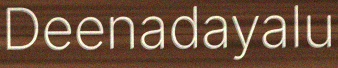
Deenadayalu